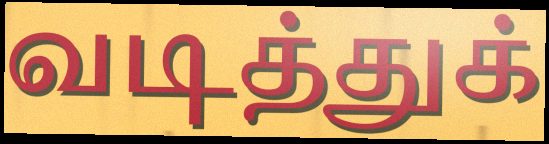
வடித்துக்